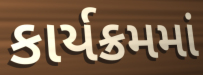
કાર્યક્રમમાં